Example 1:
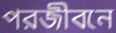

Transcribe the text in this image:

পরজীবনে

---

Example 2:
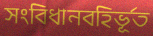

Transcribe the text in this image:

সংবিধানবহির্ভূত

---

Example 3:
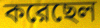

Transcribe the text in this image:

করেছেল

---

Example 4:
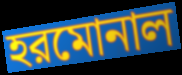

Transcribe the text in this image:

হরমোনাল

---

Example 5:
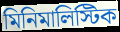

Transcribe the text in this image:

মিনিমালিস্টিক